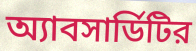
অ্যাবসার্ডিটির